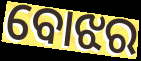
ବୋଝର